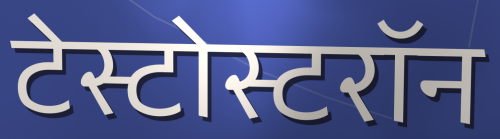
टेस्टोस्टरॉन